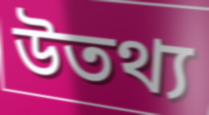
উতথ্য